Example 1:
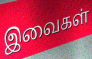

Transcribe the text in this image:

இவைகள்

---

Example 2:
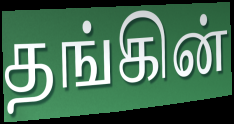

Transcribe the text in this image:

தங்கின்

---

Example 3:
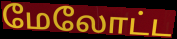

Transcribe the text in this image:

மேலோட்ட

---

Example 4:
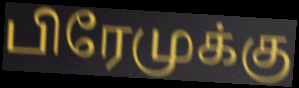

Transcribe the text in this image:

பிரேமுக்கு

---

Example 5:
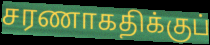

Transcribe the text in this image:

சரணாகதிக்குப்